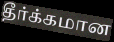
தீர்க்கமான